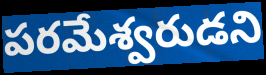
పరమేశ్వరుడని